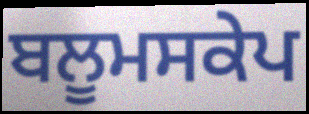
ਬਲੂਮਸਕੇਪ